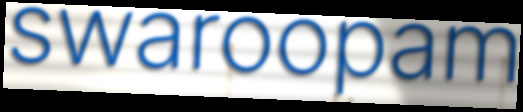
swaroopam